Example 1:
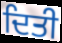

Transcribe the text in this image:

ਦਿਤੀ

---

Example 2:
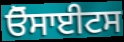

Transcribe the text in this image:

ਓੋਸਾਈਟਸ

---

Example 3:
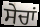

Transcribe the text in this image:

ਸੇਚਾਂ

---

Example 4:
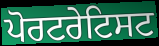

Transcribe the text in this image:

ਪੋਰਟਰੇਟਿਸਟ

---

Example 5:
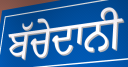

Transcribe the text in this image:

ਬੱਚੇਦਾਨੀ